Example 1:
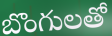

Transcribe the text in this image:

బొంగులతో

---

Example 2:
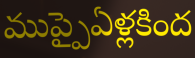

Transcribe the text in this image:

ముప్పైఏళ్లకింద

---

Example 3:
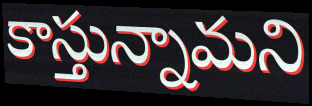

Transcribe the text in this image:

కాస్తున్నామని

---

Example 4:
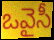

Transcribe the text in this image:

ఒవైసీ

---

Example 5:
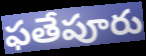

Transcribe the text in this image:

ఫతేపూరు